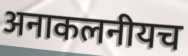
अनाकलनीयच